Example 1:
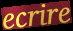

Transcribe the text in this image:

ecrire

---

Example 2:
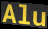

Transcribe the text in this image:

Alu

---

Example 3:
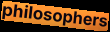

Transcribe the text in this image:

philosophers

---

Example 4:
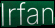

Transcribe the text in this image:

Irfan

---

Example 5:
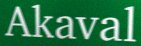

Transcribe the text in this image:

Akaval